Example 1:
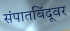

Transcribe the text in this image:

संपातबिंदूवर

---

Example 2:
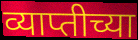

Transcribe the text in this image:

व्याप्तीच्या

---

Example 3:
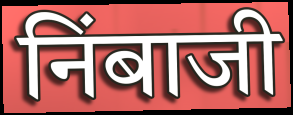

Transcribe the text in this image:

निंबाजी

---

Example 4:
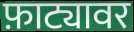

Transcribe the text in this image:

फ़ाट्यावर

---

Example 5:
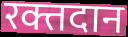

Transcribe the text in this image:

रक्तदान